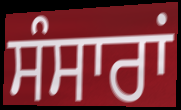
ਸੰਸਾਰਾਂ